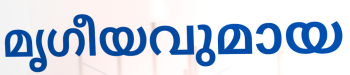
മൃഗീയവുമായ